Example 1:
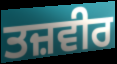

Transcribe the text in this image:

ਤਜ਼ਵੀਰ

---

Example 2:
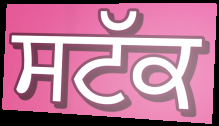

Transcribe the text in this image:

ਸਟੱਕ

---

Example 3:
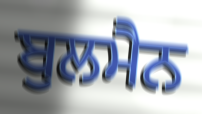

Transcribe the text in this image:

ਬੁਲਮੈਨ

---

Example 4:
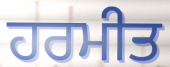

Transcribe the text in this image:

ਹਰਮੀਤ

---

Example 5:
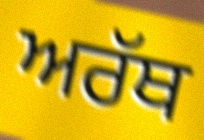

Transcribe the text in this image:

ਅਰੱਥ